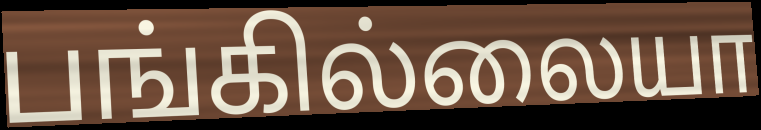
பங்கில்லையா